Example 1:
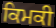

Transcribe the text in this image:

ਕਿਮਕੀ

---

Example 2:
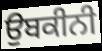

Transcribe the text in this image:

ਉਬਕੀਨੀ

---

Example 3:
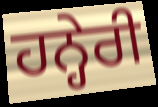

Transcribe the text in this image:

ਹਨ੍ਹੇਰੀ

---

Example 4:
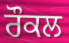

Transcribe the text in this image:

ਰੌਕਲ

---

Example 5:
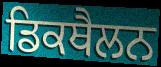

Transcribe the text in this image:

ਡਿਕਥੈਲਨ